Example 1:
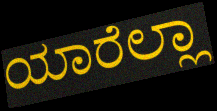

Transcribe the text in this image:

ಯಾರೆಲ್ಲಾ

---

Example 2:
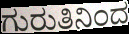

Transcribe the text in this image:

ಗುರುತಿನಿಂದ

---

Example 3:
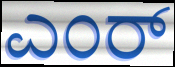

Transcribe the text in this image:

ಎಂರ್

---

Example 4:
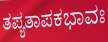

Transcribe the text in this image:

ತಪ್ಯತಾಪಕಭಾವಃ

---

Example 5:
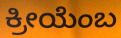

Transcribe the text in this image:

ಕ್ರೀಯೆಂಬ